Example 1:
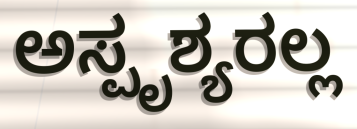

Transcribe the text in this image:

ಅಸ್ಪೃಶ್ಯರಲ್ಲ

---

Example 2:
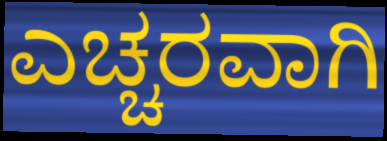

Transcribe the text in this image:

ಎಚ್ಚರವಾಗಿ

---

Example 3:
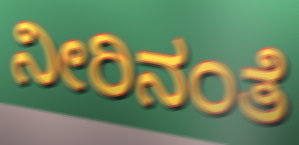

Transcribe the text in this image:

ನೀರಿನಂತೆ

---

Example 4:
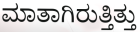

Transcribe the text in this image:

ಮಾತಾಗಿರುತ್ತಿತ್ತು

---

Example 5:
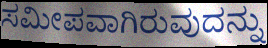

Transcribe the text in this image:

ಸಮೀಪವಾಗಿರುವುದನ್ನು